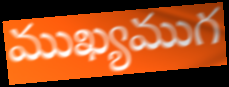
ముఖ్యముగ